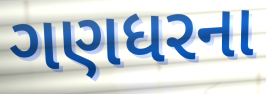
ગણધરના